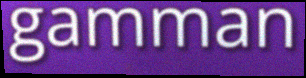
gamman